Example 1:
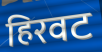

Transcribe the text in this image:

हिरवट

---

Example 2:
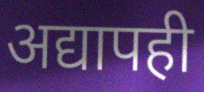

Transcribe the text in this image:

अद्यापही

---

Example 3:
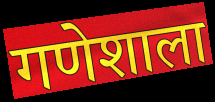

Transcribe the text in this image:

गणेशाला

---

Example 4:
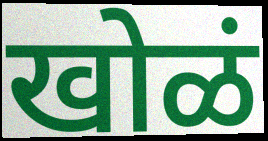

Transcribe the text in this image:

खोळं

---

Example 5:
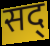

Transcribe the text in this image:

सद्